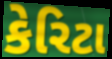
કેરિટા